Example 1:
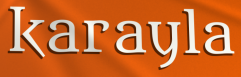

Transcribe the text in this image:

karayla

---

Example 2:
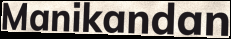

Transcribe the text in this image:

Manikandan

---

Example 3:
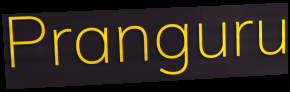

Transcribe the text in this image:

Pranguru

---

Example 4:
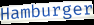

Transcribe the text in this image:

Hamburger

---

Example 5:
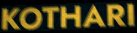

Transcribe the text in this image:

KOTHARI